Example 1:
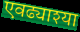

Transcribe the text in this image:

एवढ्याश्या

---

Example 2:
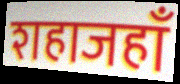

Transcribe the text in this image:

शहाजहाँ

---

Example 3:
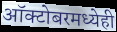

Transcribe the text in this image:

ऑक्टोबरमध्येही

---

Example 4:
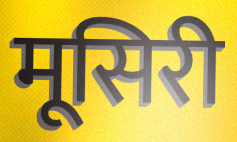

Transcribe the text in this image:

मूसिरी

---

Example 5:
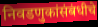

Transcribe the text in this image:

निवडणुकांसंबंधीचे